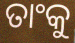
ତାଂକୁ